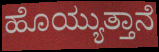
ಹೊಯ್ಯುತ್ತಾನೆ